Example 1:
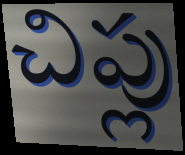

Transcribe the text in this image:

చిప్లు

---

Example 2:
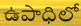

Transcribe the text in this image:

ఉపాధిలో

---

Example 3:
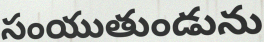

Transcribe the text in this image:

సంయుతుండును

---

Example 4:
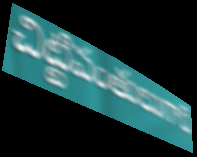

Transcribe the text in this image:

చిట్టిపంతులుగారి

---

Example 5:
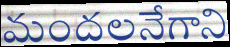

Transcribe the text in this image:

మందలనేగాని